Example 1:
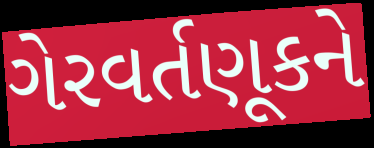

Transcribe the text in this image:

ગેરવર્તણૂકને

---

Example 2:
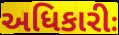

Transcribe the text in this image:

અધિકારીઃ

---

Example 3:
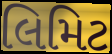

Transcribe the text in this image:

લિમિટ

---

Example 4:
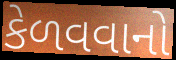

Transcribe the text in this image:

કેળવવાનો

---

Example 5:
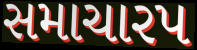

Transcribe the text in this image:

સમાચારપ